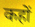
कहों